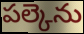
పల్కెను